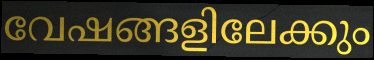
വേഷങ്ങളിലേക്കും